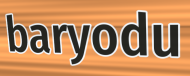
baryodu